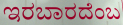
ಇರಬಾರದೆಂಬ